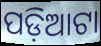
ପଡ଼ିଆଟା